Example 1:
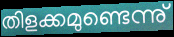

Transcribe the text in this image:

തിളക്കമുണ്ടെന്നു്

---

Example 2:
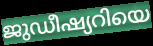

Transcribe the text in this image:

ജുഡീഷ്യറിയെ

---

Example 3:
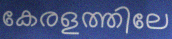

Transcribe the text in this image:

കേരളത്തിലേ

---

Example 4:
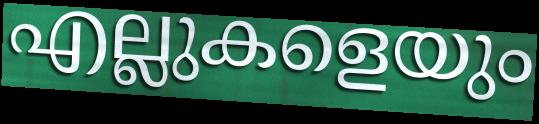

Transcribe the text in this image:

എല്ലുകളെയും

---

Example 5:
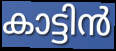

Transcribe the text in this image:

കാട്ടിൻ